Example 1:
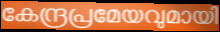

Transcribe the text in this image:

കേന്ദ്രപ്രമേയവുമായി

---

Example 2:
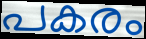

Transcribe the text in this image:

പകരം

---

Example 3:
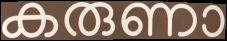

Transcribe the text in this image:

കരുണാ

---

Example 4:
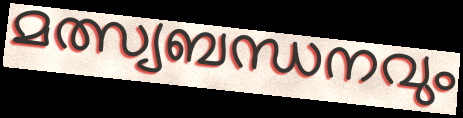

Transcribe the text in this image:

മത്സ്യബന്ധനവും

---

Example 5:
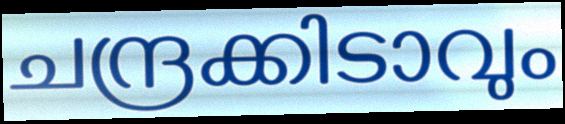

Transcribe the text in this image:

ചന്ദ്രക്കിടാവും